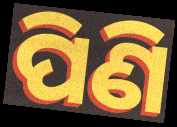
ପିଣି